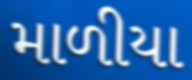
માળીયા